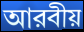
আরবীয়